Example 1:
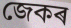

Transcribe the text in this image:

জেকৰ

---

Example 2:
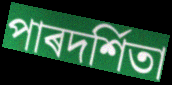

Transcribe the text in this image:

পাৰদৰ্শিতা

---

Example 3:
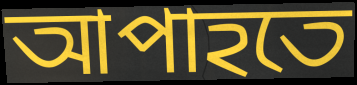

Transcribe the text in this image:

আপাহতে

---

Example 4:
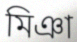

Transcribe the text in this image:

মিঞা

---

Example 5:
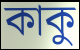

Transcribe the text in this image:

কাকু